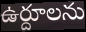
ఉర్దూలను